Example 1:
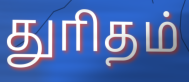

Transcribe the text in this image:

துரிதம்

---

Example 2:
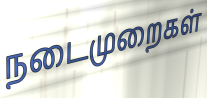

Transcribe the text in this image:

நடைமுறைகள்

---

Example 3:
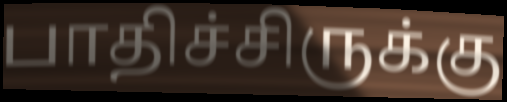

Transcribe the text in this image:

பாதிச்சிருக்கு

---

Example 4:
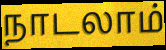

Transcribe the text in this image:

நாடலாம்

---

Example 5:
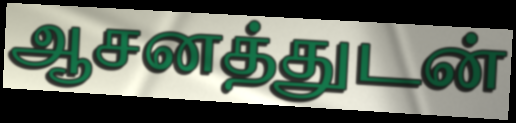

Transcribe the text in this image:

ஆசனத்துடன்